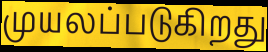
முயலப்படுகிறது